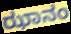
ಝಾನಂ